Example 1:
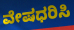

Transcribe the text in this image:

ವೇಷಧರಿಸಿ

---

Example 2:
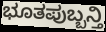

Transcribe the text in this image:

ಭೂತಪುಬ್ಬನ್ತಿ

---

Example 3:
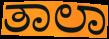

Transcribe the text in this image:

ತಾಲಾ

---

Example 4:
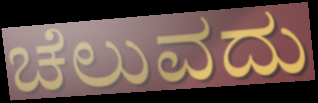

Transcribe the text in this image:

ಚೆಲುವದು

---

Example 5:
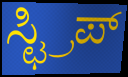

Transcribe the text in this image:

ಸ್ಟ್ರಿಪ್